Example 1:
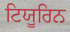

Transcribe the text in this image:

ਟਿਯੂਰਿਨ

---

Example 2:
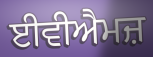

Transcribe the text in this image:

ਈਵੀਐਮਜ਼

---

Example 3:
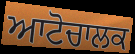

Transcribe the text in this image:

ਆਟੋਚਾਲਕ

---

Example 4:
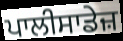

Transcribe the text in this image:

ਪਾਲੀਸਾਡੇਜ਼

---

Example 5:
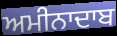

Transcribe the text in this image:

ਅਮੀਨਾਦਾਬ